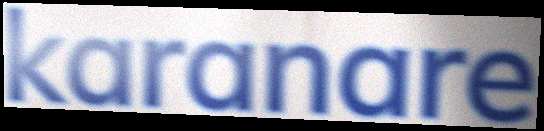
karanare